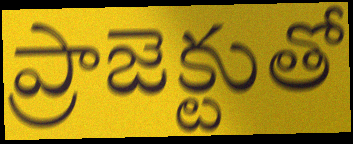
ప్రాజెక్టుతో